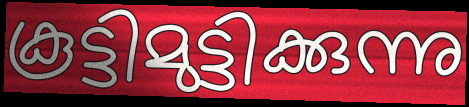
കൂട്ടിമുട്ടിക്കുന്നു